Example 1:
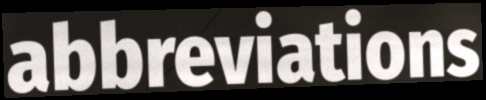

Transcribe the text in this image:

abbreviations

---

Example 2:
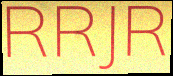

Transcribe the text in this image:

RRJR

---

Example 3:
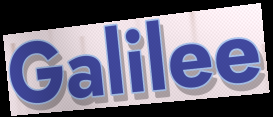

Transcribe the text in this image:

Galilee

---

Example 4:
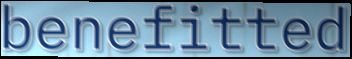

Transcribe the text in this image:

benefitted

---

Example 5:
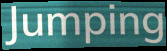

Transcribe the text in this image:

Jumping